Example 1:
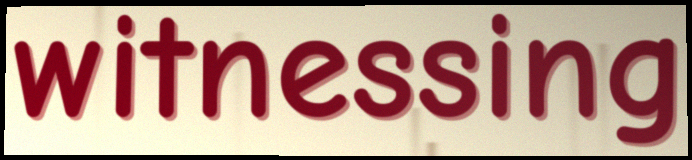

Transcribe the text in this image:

witnessing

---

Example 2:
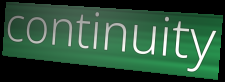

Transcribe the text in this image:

continuity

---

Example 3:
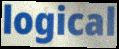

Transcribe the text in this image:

logical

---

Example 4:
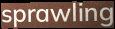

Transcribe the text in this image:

sprawling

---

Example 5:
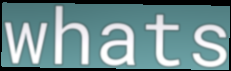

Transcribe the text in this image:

whats